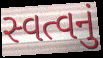
સ્વત્વનું